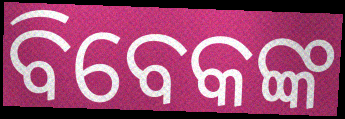
ବିବେକଙ୍କ